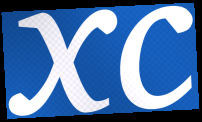
xc